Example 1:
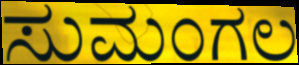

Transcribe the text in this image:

ಸುಮಂಗಲ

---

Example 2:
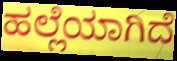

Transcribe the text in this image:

ಹಲ್ಲೆಯಾಗಿದೆ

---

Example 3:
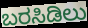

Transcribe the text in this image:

ಬರಸಿಡಿಲು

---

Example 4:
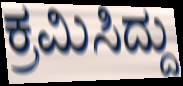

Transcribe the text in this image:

ಕ್ರಮಿಸಿದ್ದು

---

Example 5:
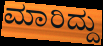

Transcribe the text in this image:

ಮಾರಿದ್ದು